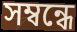
সম্বন্ধে